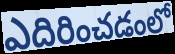
ఎదిరించడంలో